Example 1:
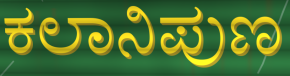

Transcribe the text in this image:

ಕಲಾನಿಪುಣ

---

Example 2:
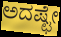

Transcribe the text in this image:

ಅದಷ್ಟೇ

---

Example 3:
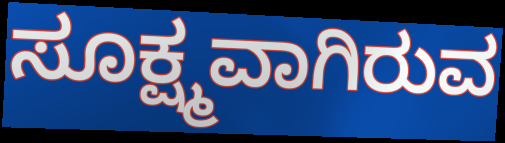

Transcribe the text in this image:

ಸೂಕ್ಷ್ಮವಾಗಿರುವ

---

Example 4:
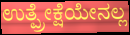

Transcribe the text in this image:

ಉತ್ಪ್ರೇಕ್ಷೆಯೇನಲ್ಲ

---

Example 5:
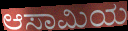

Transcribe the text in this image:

ಆಸಾಮಿಯ